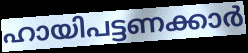
ഹായിപട്ടണക്കാർ